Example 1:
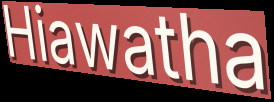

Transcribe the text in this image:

Hiawatha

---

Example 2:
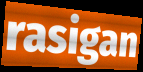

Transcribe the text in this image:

rasigan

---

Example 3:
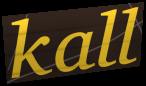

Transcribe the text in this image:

kall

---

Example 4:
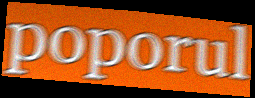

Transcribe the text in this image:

poporul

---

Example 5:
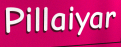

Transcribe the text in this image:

Pillaiyar